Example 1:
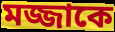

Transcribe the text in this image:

মজ্জাকে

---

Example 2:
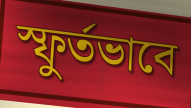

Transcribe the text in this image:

স্ফুর্তভাবে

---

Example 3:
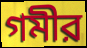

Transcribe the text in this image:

গমীর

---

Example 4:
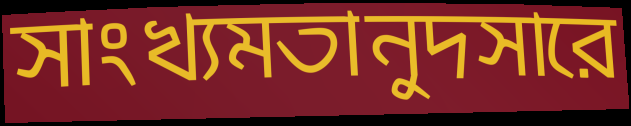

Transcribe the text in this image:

সাংখ্যমতানুদসারে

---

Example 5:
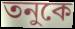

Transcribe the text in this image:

তনুকে